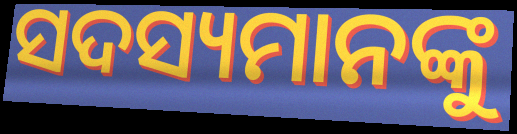
ସଦସ୍ୟମାନଙ୍କୁ